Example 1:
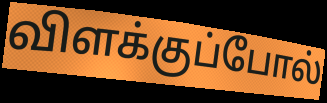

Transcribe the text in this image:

விளக்குப்போல்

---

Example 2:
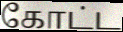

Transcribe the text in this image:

கோட்ட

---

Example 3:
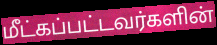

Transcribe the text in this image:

மீட்கப்பட்டவர்களின்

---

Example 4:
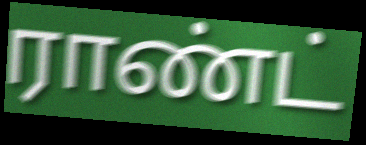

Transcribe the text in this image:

ராண்ட்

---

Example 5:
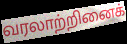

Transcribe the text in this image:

வரலாற்றினைக்